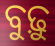
ବୁଢ଼ୁ